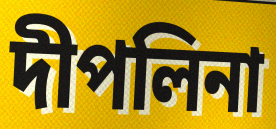
দীপলিনা